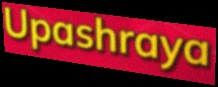
Upashraya